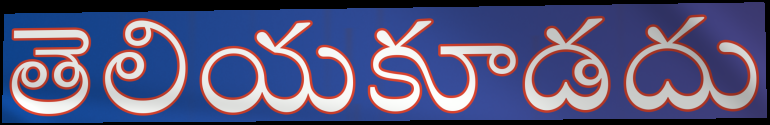
తెలియకూడదు